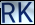
RK